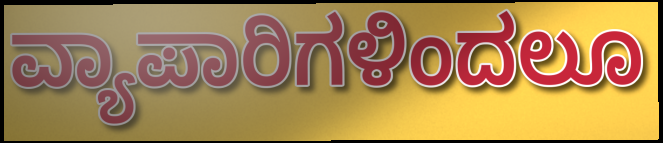
ವ್ಯಾಪಾರಿಗಳಿಂದಲೂ